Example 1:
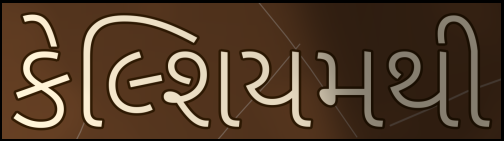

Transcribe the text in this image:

કેલ્શિયમથી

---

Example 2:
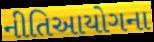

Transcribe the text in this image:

નીતિઆયોગના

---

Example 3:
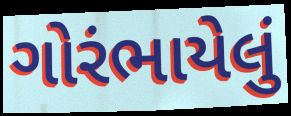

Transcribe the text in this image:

ગોરંભાયેલું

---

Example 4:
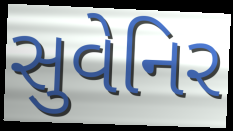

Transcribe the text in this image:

સુવેનિર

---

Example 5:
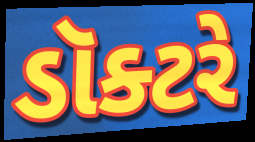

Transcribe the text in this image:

ડૉક્ટરે